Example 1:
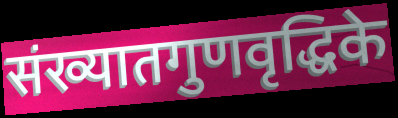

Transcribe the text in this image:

संख्यातगुणवृद्धिके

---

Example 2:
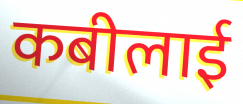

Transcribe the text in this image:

कबीलाई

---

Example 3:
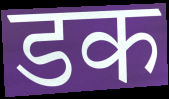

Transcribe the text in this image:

डक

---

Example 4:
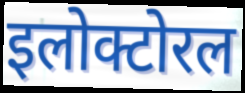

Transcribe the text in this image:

इलोक्टोरल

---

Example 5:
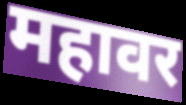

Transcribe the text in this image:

महावर